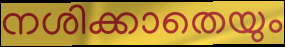
നശിക്കാതെയും